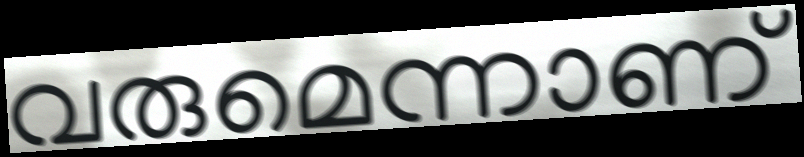
വരുമെന്നാണ്